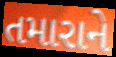
તમારાને